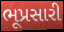
ભૂપ્રસારી